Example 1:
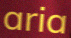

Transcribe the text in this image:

aria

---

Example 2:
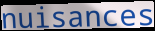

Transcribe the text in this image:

nuisances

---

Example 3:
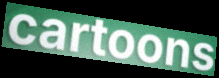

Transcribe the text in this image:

cartoons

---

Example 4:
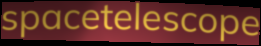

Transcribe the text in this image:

spacetelescope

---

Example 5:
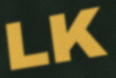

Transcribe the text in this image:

LK